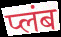
प्लंब